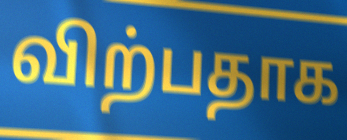
விற்பதாக